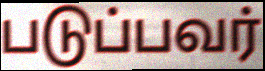
படுப்பவர்